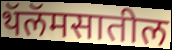
थॅलॅमसातील